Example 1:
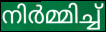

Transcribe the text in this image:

നിർമ്മിച്ച്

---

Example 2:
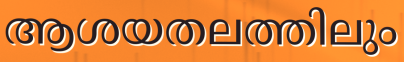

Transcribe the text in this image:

ആശയതലത്തിലും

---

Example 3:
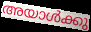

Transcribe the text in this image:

അയാൾക്കു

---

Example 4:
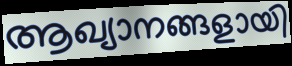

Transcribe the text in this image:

ആഖ്യാനങ്ങളായി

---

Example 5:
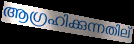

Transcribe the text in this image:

ആഗ്രഹിക്കുന്നതില്